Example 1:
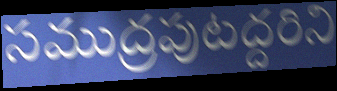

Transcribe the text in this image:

సముద్రపుటద్దరిని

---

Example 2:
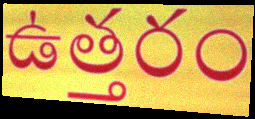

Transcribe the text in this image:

ఉత్తరం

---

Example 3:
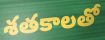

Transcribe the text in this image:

శతకాలతో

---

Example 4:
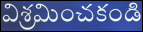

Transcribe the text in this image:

విశ్రమించకండి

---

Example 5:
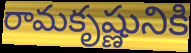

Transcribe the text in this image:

రామకృష్ణునికి